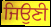
ਜਿਉਣੀ